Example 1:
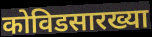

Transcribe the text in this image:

कोविडसारख्या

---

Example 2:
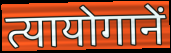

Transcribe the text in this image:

त्यायोगानें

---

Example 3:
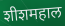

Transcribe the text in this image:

शीशमहाल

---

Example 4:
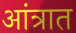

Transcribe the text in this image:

आंत्रात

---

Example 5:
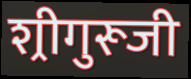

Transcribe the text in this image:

श्रीगुरूजी